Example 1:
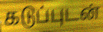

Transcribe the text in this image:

கடுப்புடன்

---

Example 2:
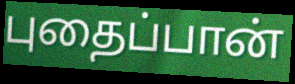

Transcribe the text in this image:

புதைப்பான்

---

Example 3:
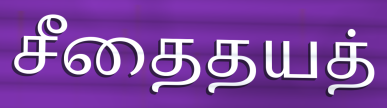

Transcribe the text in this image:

சீதைதயத்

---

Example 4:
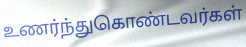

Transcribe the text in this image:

உணர்ந்துகொண்டவர்கள்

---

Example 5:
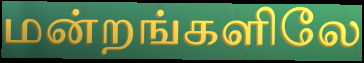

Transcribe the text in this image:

மன்றங்களிலே